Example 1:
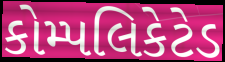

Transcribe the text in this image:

કોમ્પલિકેટેડ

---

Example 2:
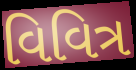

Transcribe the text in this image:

વિવિત્ર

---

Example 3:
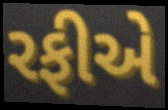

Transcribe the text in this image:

રફીએ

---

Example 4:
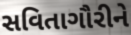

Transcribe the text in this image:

સવિતાગૌરીને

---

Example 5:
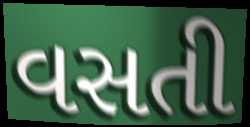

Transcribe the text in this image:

વસતી